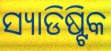
ସ୍ୟାଡିଷ୍ଟିକ